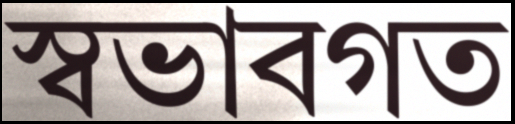
স্বভাবগত